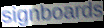
signboards